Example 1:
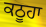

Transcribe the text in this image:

ਕਠੂਹਾ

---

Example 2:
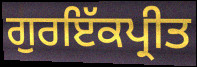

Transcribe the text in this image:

ਗੁਰਇੱਕਪ੍ਰੀਤ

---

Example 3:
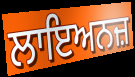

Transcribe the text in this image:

ਲਾਇਅਨਜ਼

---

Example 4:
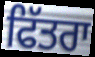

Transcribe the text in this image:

ਫਿੱਤਰਾ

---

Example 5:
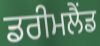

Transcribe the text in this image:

ਡਰੀਮਲੈਂਡ